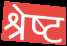
श्रेष्‍ट